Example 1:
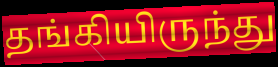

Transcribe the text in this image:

தங்கியிருந்து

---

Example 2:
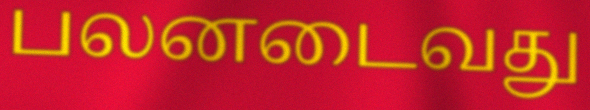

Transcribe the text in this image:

பலனடைவது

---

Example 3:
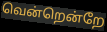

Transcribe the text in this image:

வென்றென்றே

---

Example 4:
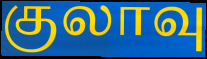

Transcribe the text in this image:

குலாவு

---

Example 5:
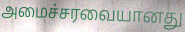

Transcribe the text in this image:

அமைச்சரவையானது